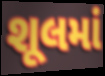
શૂલમાં